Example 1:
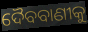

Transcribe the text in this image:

ଦୈବବାଣୀକୁ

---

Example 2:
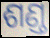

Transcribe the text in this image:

ଶଣ୍ଡ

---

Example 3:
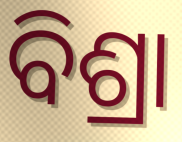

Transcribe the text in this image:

ବିଶ୍ରା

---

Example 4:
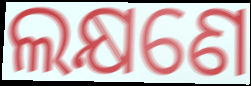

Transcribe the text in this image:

ଲକ୍ଷଣେ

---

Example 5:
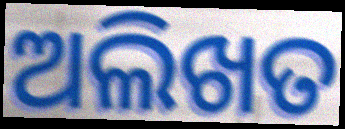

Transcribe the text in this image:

ଅଲିଖତ